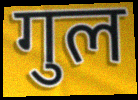
गुल